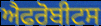
ਐਫਰੋਬੀਟਸ